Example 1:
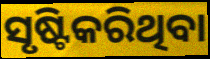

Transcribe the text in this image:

ସୃଷ୍ଟିକରିଥିବା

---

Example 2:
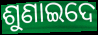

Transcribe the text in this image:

ଶୁଣାଇଦେ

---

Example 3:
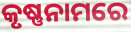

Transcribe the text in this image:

କୃଷ୍ଣନାମରେ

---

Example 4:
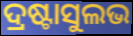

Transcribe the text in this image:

ଦ୍ରଷ୍ଟାସୁଲଭ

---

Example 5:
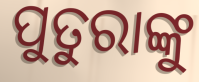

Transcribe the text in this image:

ପୁତୁରାଙ୍କୁ